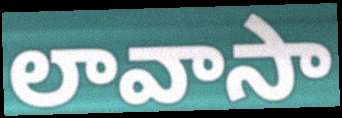
లావాసా